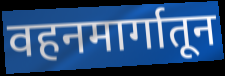
वहनमार्गातून